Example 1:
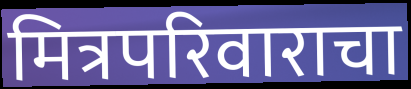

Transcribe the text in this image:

मित्रपरिवाराचा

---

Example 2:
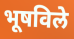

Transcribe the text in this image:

भूषविले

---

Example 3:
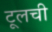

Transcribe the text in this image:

टूलची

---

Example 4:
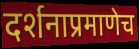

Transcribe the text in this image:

दर्शनाप्रमाणेच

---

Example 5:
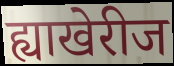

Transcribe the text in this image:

ह्याखेरीज